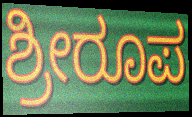
ಶ್ರೀರೂಪ